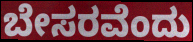
ಬೇಸರವೆಂದು